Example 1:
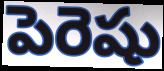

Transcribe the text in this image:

పెరెషు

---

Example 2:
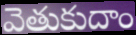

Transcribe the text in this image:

వెతుకుదాం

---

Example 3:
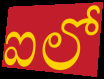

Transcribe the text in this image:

ఐలో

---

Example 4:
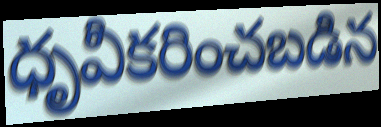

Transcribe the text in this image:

ధృవీకరించబడిన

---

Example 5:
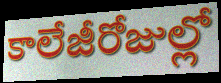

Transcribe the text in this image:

కాలేజీరోజుల్లో